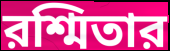
রশ্মিতার